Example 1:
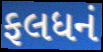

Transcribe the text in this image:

ફલધનં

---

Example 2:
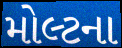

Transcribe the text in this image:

મોલ્ટના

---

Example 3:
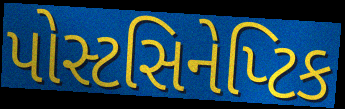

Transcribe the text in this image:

પોસ્ટસિનેપ્ટિક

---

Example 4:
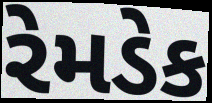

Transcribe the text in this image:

રેમડેક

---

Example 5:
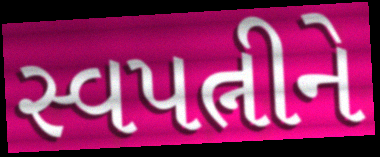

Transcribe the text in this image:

સ્વપત્નીને